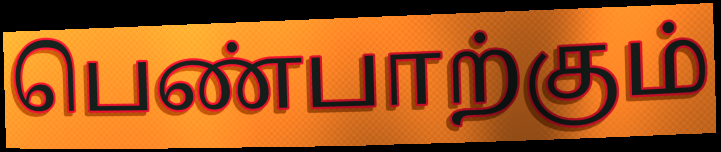
பெண்பாற்கும்